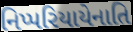
નિપ્પરિયાયેનાતિ